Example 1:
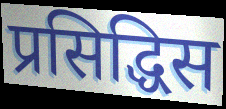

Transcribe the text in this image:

प्रसिद्धिस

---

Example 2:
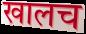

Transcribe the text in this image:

खालच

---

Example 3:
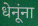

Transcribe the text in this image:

धेनूंना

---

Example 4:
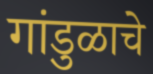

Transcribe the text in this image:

गांडुळाचे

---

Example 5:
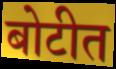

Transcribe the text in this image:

बोटीत